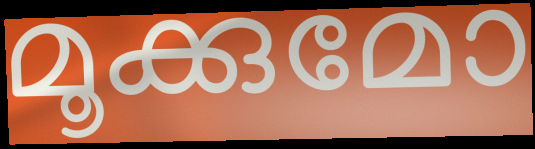
മൂക്കുമോ